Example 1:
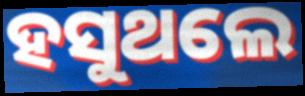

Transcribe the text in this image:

ହସୁଥଲେ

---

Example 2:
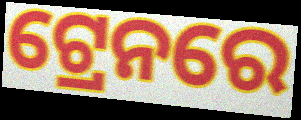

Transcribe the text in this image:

ଟ୍ରେନରେ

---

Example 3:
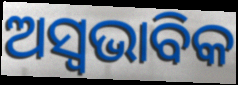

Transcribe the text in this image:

ଅସ୍ୱଭାବିକ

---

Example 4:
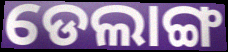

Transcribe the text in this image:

ଡେଲାଙ୍ଗ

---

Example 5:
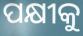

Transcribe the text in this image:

ପକ୍ଷୀକୁ